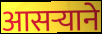
आसर्‍याने